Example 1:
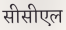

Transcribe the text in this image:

सीसीएल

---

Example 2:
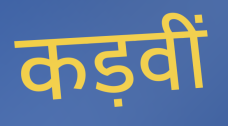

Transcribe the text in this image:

कड़वीं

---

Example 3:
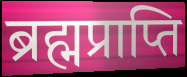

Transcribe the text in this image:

ब्रह्मप्राप्ति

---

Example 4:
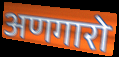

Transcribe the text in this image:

अणगारो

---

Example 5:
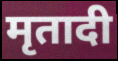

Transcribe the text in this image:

मृतादी